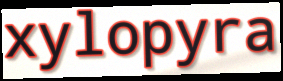
xylopyra